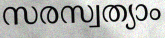
സരസ്വത്യാം